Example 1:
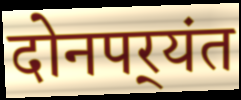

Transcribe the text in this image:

दोनपर्यंत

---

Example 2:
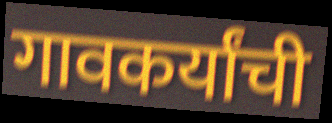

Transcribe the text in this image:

गावकर्यांची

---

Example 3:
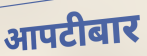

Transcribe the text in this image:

आपटीबार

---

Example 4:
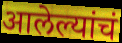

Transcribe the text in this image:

आलेल्यांचं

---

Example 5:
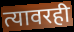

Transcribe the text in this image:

त्यावरही